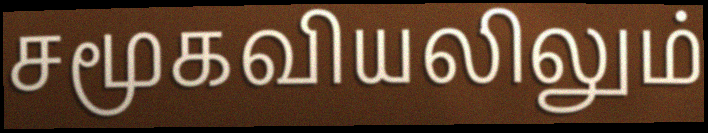
சமூகவியலிலும்